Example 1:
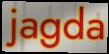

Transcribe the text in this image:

jagda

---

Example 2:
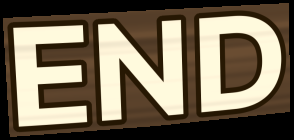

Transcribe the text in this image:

END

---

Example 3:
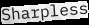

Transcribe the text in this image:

Sharpless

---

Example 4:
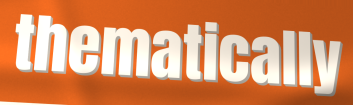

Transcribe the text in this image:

thematically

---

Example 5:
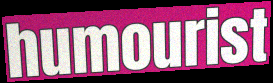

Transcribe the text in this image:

humourist